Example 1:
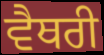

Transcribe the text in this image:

ਵੈਥਰੀ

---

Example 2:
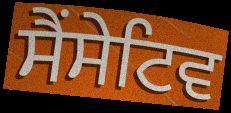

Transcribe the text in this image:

ਸੈਂਸੇਟਿਵ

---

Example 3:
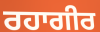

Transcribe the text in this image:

ਰਹਾਗੀਰ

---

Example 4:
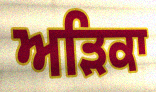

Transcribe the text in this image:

ਅੜਿਕਾ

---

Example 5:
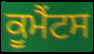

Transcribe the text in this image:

ਕੂਮੈਂਟਸ